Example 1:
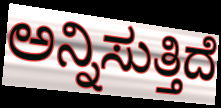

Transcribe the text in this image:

ಅನ್ನಿಸುತ್ತಿದೆ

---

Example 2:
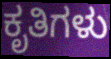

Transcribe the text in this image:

ಕೃತಿಗಳು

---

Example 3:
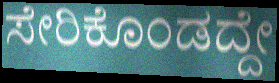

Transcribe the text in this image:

ಸೇರಿಕೊಂಡದ್ದೇ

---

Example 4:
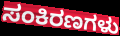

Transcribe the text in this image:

ಸಂಕಿರಣಗಳು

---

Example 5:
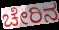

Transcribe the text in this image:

ಚೇರಿನ